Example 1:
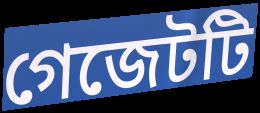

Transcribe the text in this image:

গেজেটটি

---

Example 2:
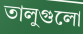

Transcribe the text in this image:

তালুগুলো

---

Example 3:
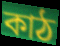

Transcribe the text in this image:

কাঠ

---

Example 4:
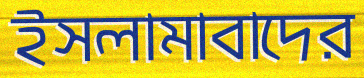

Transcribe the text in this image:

ইসলামাবাদের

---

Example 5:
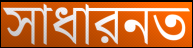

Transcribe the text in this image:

সাধারনত